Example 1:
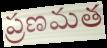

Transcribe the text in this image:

ప్రణమత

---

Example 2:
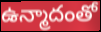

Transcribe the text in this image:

ఉన్మాదంతో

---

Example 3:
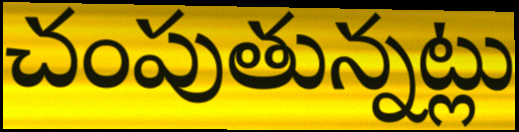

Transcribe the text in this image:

చంపుతున్నట్లు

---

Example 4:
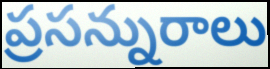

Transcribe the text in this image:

ప్రసన్నురాలు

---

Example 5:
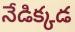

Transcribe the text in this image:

నేడిక్కడ